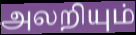
அலறியும்